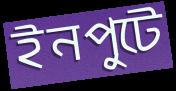
ইনপুটে